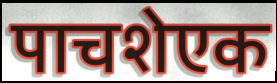
पाचशेएक